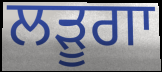
ਲੜੂਗਾ